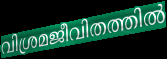
വിശ്രമജീവിതത്തിൽ